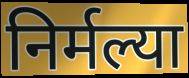
निर्मल्या